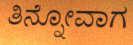
ತಿನ್ನೋವಾಗ